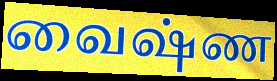
வைஷ்ண